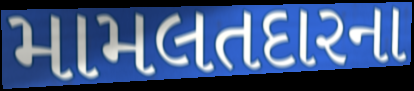
મામલતદારના